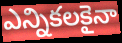
ఎన్నికలకైనా